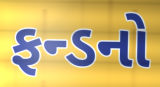
ફન્ડનો